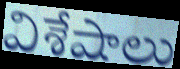
విశేషాలు